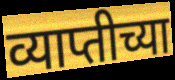
व्याप्तीच्या